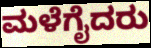
ಮಳೆಗೈದರು